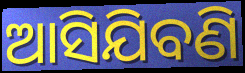
ଆସିଯିବଣି